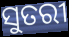
ସୁତରୀ